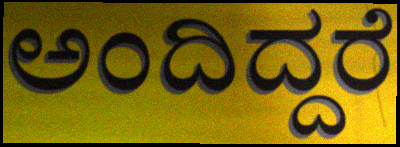
ಅಂದಿದ್ದರೆ